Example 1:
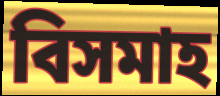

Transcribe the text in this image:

বিসমাহ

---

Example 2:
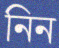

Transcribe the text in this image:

নিন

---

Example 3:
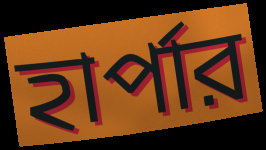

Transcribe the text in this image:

হার্পার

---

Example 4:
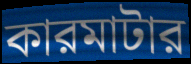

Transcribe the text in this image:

কারমাটার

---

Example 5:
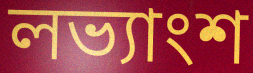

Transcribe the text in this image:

লভ্যাংশ